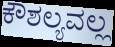
ಕೌಶಲ್ಯವಲ್ಲ